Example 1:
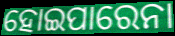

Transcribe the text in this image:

ହୋଇପାରେନା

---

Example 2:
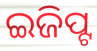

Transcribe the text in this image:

ଇଜିପ୍ଟ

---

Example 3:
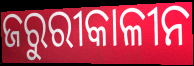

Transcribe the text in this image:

ଜରୁରୀକାଳୀନ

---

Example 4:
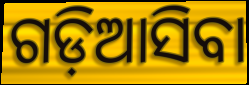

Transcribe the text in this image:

ଗଡ଼ିଆସିବା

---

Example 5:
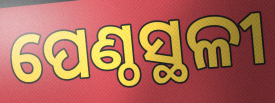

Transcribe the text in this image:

ପେଣ୍ଠସ୍ଥଳୀ